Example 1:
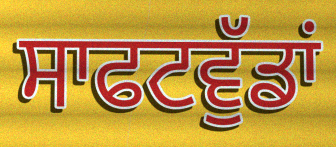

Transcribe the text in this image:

ਸਾਫਟਵੁੱਡਾਂ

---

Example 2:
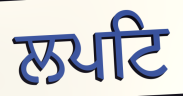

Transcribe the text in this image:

ਲਪਟਿ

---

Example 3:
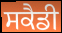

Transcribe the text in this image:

ਸਕੈਡੀ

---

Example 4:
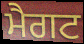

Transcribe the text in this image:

ਮੈਗਟ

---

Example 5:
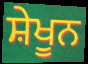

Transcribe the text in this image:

ਸ਼ੇਖੂਨ